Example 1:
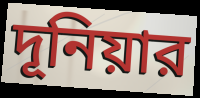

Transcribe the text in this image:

দূনিয়ার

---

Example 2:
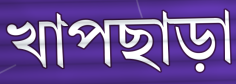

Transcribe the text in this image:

খাপছাড়া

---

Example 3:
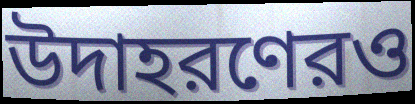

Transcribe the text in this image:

উদাহরণেরও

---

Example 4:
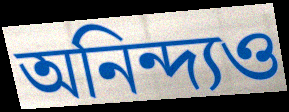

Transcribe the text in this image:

অনিন্দ্যও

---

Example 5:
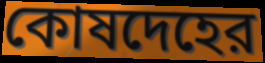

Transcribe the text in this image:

কোষদেহের